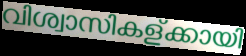
വിശ്വാസികള്ക്കായി